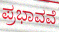
ಪ್ರಭಾವವೆ